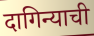
दागिन्याची